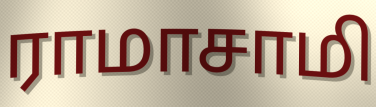
ராமாசாமி